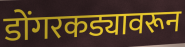
डोंगरकड्यावरून